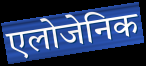
एलोजेनिक